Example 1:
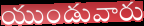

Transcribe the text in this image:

యుండువారు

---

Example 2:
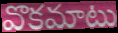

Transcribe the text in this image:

వొకమాటు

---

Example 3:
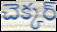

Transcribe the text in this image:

చెక్కర్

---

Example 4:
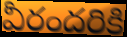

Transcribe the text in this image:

వీరందరికి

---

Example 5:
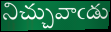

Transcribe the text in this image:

నిచ్చువాఁడు